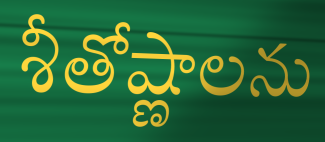
శీతోష్ణాలను